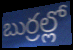
బుర్రల్లో